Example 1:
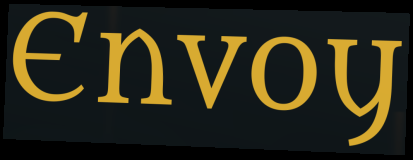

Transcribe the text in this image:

Envoy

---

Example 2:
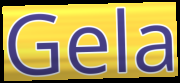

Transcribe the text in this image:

Gela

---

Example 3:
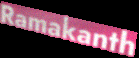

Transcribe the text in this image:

Ramakanth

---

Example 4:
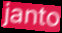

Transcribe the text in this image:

janto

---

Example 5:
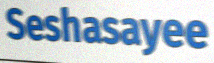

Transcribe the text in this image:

Seshasayee